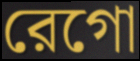
রেগো